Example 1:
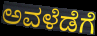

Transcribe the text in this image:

ಅವಳೆಡೆಗೆ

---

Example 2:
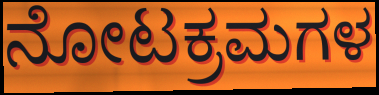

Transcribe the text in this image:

ನೋಟಕ್ರಮಗಳ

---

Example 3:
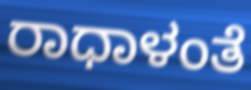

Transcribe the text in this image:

ರಾಧಾಳಂತೆ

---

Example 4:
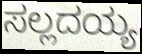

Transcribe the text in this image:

ಸಲ್ಲದಯ್ಯ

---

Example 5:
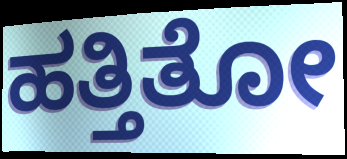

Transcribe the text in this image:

ಹತ್ತಿತೋ